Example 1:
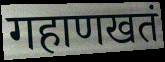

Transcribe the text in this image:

गहाणखतं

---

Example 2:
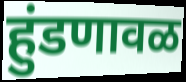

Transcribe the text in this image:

हुंडणावळ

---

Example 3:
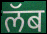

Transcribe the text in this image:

लॅब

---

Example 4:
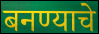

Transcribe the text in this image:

बनण्याचे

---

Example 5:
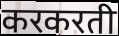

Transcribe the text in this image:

करकरती